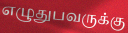
எழுதுபவருக்கு